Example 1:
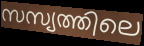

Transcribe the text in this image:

സസ്യത്തിലെ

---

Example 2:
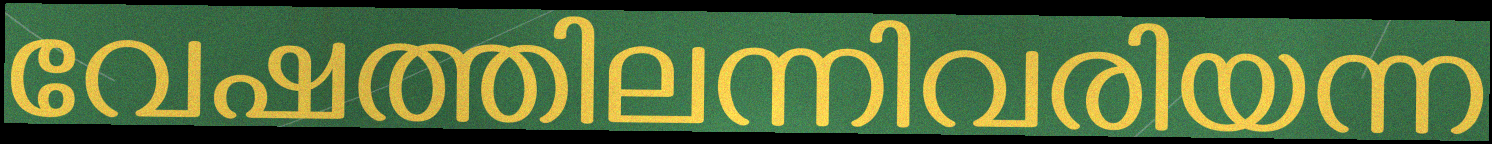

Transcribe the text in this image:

വേഷത്തിലന്നിവരിയന്ന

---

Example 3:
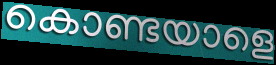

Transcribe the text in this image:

കൊണ്ടയാളെ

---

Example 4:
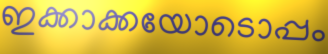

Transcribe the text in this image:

ഇക്കാക്കയോടൊപ്പം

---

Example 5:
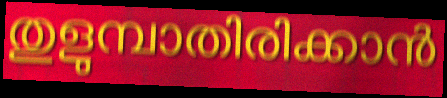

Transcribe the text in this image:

തുളുമ്പാതിരിക്കാൻ